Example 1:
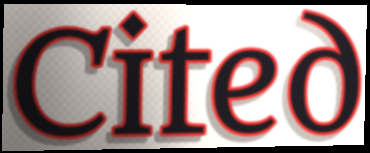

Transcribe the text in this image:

Cited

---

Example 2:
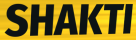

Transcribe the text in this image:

SHAKTI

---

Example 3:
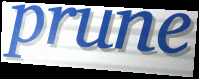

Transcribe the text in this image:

prune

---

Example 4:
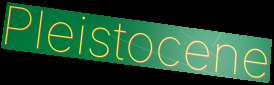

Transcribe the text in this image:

Pleistocene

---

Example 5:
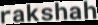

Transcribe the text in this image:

rakshah